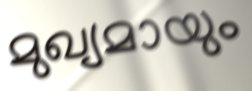
മുഖ്യമായും